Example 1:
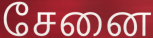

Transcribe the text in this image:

சேனை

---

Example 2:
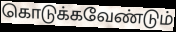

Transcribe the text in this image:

கொடுக்கவேண்டும்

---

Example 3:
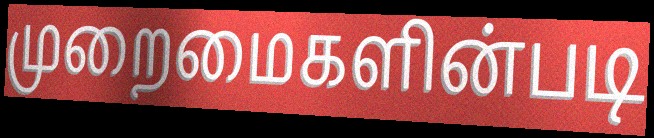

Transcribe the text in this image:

முறைமைகளின்படி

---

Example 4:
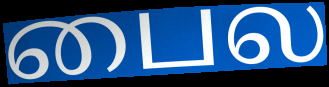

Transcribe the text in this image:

பைல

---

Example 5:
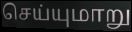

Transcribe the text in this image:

செய்யுமாறு